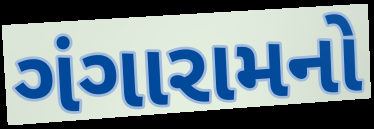
ગંગારામનો